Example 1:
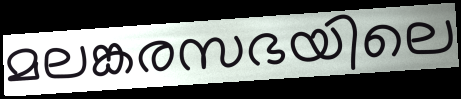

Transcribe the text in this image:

മലങ്കരസഭയിലെ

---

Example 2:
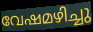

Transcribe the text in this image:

വേഷമഴിച്ചു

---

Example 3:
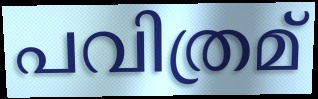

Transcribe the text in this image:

പവിത്രമ്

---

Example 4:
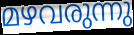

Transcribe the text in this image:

മഴവരുന്നു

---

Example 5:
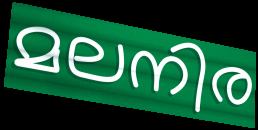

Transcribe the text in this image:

മലനിര